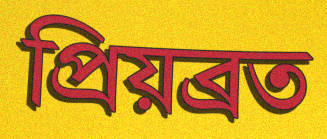
প্রিয়ব্রত